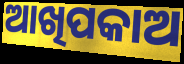
ଆଖିପକାଅ